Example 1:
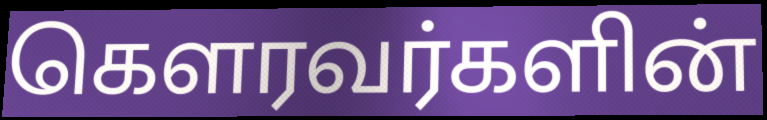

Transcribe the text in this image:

கௌரவர்களின்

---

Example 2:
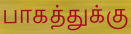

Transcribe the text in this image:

பாகத்துக்கு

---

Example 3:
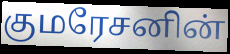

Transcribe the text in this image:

குமரேசனின்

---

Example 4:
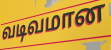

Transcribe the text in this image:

வடிவமான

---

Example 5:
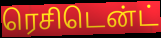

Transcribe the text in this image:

ரெசிடென்ட்